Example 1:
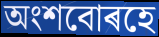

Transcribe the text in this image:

অংশবোৰহে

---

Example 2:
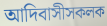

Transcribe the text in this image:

আদিবাসীসকলক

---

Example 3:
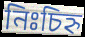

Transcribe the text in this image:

নিঃচিহ্ন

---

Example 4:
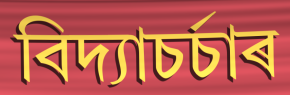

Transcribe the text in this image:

বিদ্যাচৰ্চাৰ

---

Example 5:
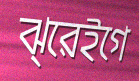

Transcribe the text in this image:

ঝ্ৱেইগে